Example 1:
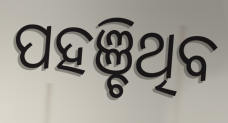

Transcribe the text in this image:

ପହଞ୍ଚିଥିବ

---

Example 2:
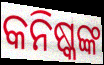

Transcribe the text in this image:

କନିଷ୍କଙ୍କ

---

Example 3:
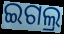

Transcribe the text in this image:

ଇଗଲ୍ର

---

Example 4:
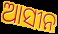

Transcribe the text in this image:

ଆସୀନ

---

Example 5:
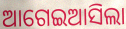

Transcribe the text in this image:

ଆଗେଇଆସିଲା